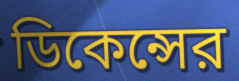
ডিকেন্সের